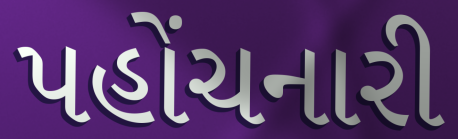
પહોંચનારી